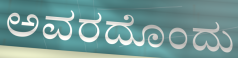
ಅವರದೊಂದು